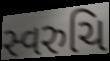
સ્વરુચિ